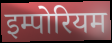
इम्पोरियम